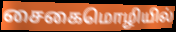
சைகைமொழியில்